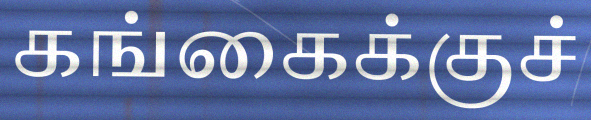
கங்கைக்குச்